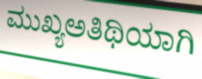
ಮುಖ್ಯಅತಿಥಿಯಾಗಿ